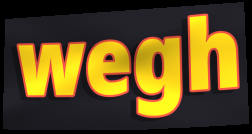
wegh